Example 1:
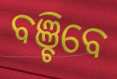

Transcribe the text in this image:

ବଞ୍ଚିବେ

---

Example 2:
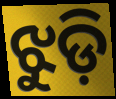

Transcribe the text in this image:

ଝୁଡ଼ି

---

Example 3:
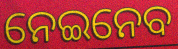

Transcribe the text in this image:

ନେଇନେବ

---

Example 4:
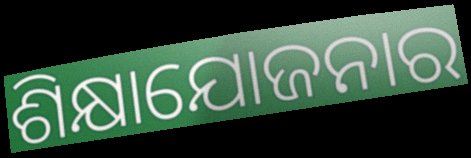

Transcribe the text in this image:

ଶିକ୍ଷାଯୋଜନାର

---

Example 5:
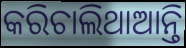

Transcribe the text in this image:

କରିଚାଲିଥାଆନ୍ତି